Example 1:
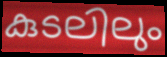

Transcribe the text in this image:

കുടലിലും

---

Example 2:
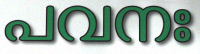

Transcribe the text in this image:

പവനഃ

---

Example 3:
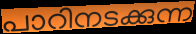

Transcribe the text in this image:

പാറിനടക്കുന്ന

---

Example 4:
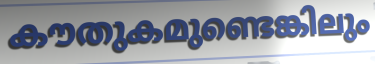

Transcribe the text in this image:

കൗതുകമുണ്ടെങ്കിലും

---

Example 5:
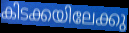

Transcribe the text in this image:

കിടക്കയിലേക്കു